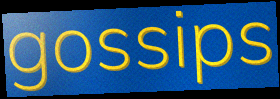
gossips